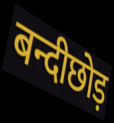
बन्दीछोड़